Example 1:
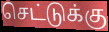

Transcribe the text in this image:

செட்டுக்கு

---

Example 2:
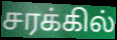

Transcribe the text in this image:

சரக்கில்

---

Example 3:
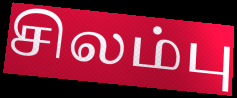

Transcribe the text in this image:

சிலம்பு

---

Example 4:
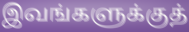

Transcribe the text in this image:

இவங்களுக்குத்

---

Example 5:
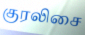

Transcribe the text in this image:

குரலிசை